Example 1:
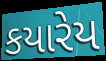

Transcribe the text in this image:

કયારેય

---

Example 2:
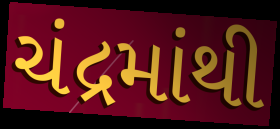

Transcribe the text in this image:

ચંદ્રમાંથી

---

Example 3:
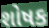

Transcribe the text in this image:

શોષક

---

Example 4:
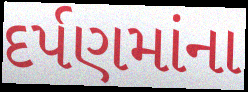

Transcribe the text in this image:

દર્પણમાંના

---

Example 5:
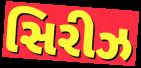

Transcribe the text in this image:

સિરીઝ